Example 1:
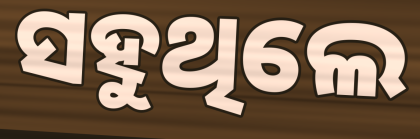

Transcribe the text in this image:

ସହୁଥିଲେ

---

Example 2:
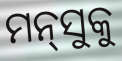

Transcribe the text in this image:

ମନ୍‌ସୁକୁ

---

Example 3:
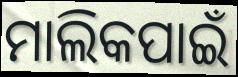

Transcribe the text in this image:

ମାଲିକପାଇଁ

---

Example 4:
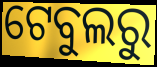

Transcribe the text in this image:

ଟେବୁଲରୁ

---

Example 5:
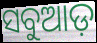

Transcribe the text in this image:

ସବୁଆଡ଼